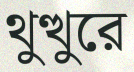
থুত্থুরে